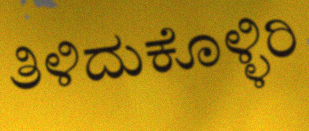
ತಿಳಿದುಕೊಳ್ಳಿರಿ